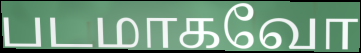
படமாகவோ